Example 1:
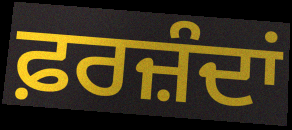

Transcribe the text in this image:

ਫ਼ਰਜ਼ੰਦਾਂ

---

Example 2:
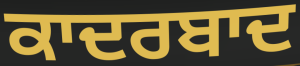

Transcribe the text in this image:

ਕਾਦਰਬਾਦ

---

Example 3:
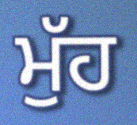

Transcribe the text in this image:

ਮੁੱਹ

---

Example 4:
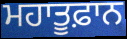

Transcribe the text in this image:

ਮਹਾਤੂਫ਼ਾਨ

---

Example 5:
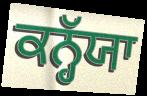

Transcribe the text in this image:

ਕਨ੍ਹੱਯਾ